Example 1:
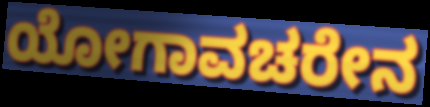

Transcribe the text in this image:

ಯೋಗಾವಚರೇನ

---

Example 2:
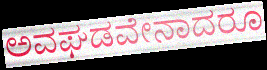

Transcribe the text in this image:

ಅವಘಡವೇನಾದರೂ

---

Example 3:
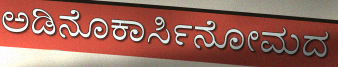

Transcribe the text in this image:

ಅಡಿನೊಕಾರ್ಸಿನೋಮದ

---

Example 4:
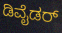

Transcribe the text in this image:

ಡಿವೈಡರ್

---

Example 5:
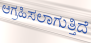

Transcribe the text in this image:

ಆಗ್ರಹಿಸಲಾಗುತ್ತಿದೆ